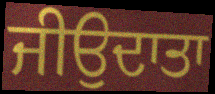
ਜੀਉਦਾਤਾ